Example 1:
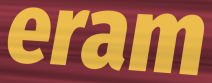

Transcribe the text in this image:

eram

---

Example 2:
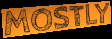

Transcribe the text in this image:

MOSTLY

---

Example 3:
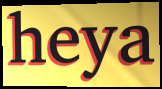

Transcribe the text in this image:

heya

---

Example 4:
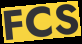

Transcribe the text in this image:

FCS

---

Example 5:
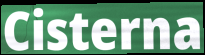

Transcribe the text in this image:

Cisterna